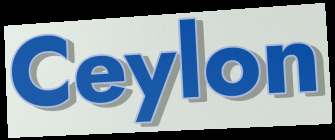
Ceylon